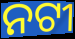
ନଟୀ